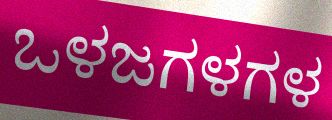
ಒಳಜಗಳಗಳ